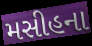
મસીહના